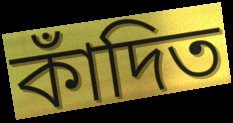
কাঁদিত